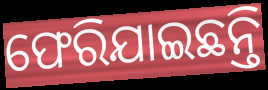
ଫେରିଯାଇଛନ୍ତି